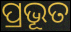
ପ୍ରଭୂତ